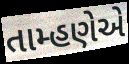
તામ્હણેએ